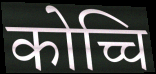
कोच्चि